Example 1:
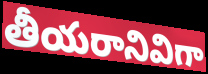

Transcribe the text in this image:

తీయరానివిగా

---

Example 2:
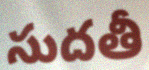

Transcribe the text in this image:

సుదతీ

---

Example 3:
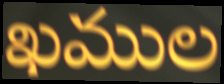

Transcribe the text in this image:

ఖముల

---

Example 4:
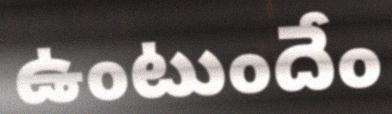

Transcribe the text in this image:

ఉంటుందేం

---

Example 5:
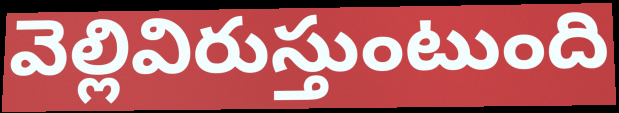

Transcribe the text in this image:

వెల్లివిరుస్తుంటుంది